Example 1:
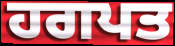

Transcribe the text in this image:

ਹਗਪਤ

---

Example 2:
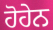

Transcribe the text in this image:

ਹੋਹੇਨ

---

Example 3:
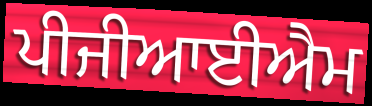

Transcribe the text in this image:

ਪੀਜੀਆਈਐਮ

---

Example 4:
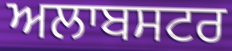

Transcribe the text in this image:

ਅਲਾਬਸਟਰ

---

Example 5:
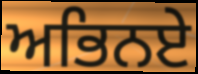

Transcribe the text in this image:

ਅਭਿਨਏ